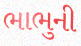
ભાભુની